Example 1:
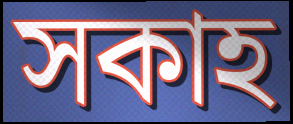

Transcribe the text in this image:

সকাহ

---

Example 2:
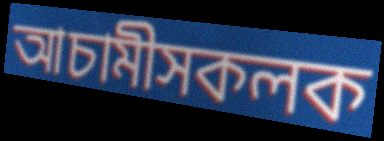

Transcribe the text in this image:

আচামীসকলক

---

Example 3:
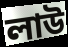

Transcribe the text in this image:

লাউ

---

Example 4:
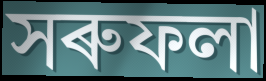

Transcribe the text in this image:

সৰুফলা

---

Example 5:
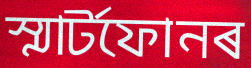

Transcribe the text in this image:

স্মাৰ্টফোনৰ